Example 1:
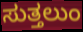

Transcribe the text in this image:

ಸುತ್ತಲುಂ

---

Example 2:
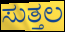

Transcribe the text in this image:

ಸುತ್ತಲ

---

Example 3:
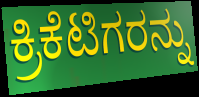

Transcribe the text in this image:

ಕ್ರಿಕೆಟಿಗರನ್ನು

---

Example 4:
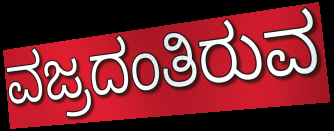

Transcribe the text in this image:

ವಜ್ರದಂತಿರುವ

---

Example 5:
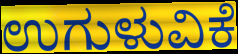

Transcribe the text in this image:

ಉಗುಳುವಿಕೆ